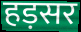
हड़सर